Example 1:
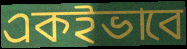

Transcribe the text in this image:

একইভাবে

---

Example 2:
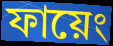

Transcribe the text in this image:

ফায়েং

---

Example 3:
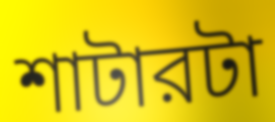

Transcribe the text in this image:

শাটারটা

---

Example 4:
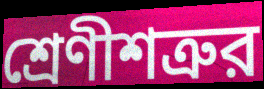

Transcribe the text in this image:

শ্রেণীশত্রুর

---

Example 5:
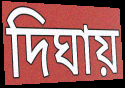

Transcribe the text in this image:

দিঘায়